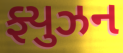
ફ્યુઝન